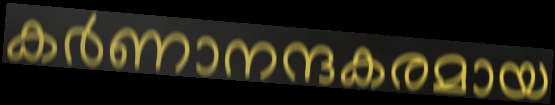
കർണാനന്ദകരമായ